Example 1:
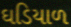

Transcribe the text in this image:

ઘડિયાળ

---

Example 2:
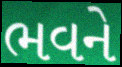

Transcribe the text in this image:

ભવને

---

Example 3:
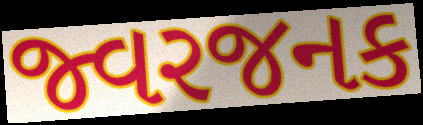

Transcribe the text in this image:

જ્વરજનક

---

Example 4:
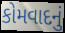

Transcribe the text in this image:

કોમવાદનું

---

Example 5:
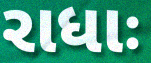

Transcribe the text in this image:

રાધાઃ